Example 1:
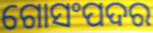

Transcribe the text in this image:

ଗୋସଂପଦର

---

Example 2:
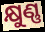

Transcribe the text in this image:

କ୍ଷୁଣ୍ଣ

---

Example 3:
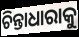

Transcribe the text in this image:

ଚିନ୍ତାଧାରାକୁ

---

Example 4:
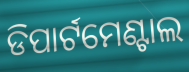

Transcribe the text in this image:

ଡିପାର୍ଟମେଣ୍ଟାଲ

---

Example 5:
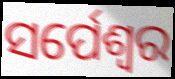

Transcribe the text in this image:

ସର୍ପେଶ୍ଵର